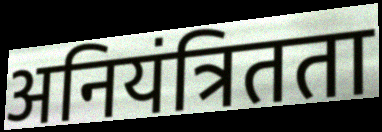
अनियंत्रितता